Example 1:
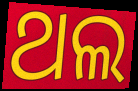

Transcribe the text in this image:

ଥଲ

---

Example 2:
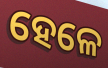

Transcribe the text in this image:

ହେଳେ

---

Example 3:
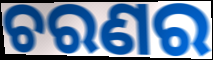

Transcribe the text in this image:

ଚରଣର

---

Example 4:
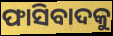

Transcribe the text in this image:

ଫାସିବାଦକୁ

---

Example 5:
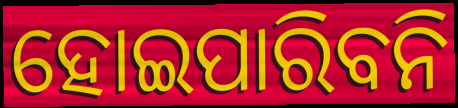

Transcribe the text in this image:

ହୋଇପାରିବନି